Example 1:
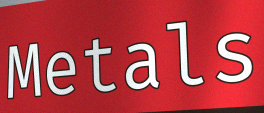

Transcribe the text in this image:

Metals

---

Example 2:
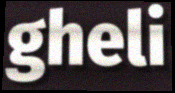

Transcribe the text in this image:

gheli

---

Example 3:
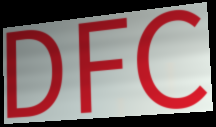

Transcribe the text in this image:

DFC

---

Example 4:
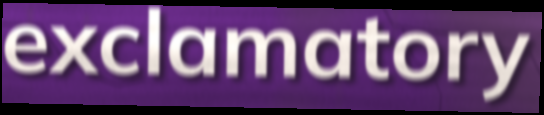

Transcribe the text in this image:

exclamatory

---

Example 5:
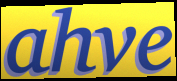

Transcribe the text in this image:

ahve